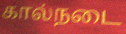
கால்நடை